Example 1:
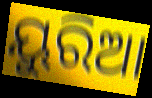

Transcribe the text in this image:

ୟୁରିଆ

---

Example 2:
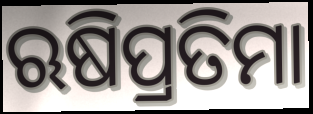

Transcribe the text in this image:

ଋଷିପ୍ରତିମା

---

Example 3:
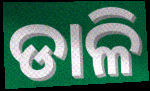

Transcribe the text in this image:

ଡାଳି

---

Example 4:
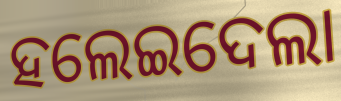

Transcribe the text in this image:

ହଲେଇଦେଲା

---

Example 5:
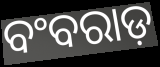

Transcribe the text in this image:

ବଂବରାଡ଼